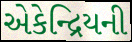
એકેન્દ્રિયની